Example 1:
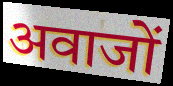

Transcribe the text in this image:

अवाजों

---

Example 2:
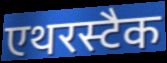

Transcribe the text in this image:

एथरस्टैक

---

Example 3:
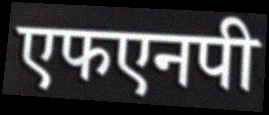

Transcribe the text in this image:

एफएनपी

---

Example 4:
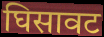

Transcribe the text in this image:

घिसावट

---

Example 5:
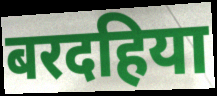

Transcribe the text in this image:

बरदहिया